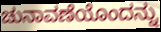
ಚುನಾವಣೆಯೊಂದನ್ನು